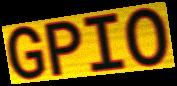
GPIO